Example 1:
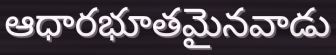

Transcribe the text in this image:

ఆధారభూతమైనవాడు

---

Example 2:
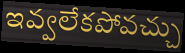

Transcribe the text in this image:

ఇవ్వలేకపోవచ్చు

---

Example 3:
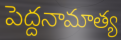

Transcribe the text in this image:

పెద్దనామాత్య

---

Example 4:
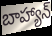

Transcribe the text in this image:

బాహ్యాన్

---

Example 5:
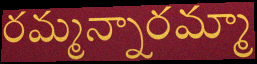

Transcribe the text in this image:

రమ్మన్నారమ్మా